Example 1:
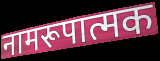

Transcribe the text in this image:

नामरूपात्मक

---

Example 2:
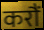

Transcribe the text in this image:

करौं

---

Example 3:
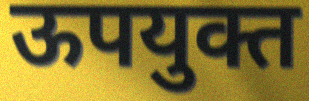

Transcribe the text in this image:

ऊपयुक्त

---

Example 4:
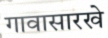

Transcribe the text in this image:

गावासारखे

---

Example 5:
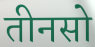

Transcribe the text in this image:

तीनसो